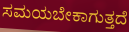
ಸಮಯಬೇಕಾಗುತ್ತದೆ